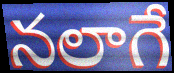
నలాగే